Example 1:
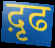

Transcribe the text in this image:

द़ृढ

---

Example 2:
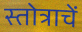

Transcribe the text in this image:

स्तोत्राचें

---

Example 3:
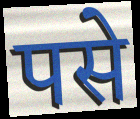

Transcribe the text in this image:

पसे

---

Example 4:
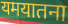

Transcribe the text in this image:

यमयातना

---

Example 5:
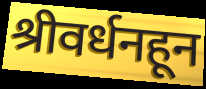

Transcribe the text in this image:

श्रीवर्धनहून